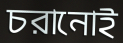
চরানোই